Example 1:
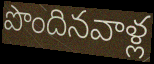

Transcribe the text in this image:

పొందినవాళ్ల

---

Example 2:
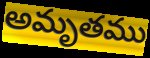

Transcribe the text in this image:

అమృతము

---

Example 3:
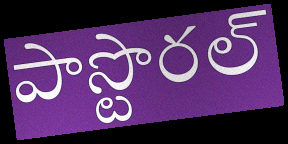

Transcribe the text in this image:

పాస్టొరల్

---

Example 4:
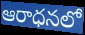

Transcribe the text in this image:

ఆరాధనలో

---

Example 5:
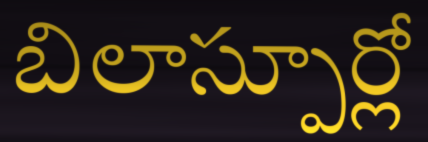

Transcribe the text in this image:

బిలాస్పూర్లో